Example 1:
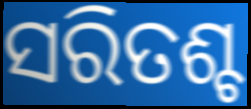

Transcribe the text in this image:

ସରିତଶ୍ଚ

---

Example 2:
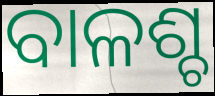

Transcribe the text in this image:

ବାଳଶ୍ଚ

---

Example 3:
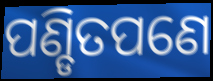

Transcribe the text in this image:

ପଣ୍ଡିତପଣେ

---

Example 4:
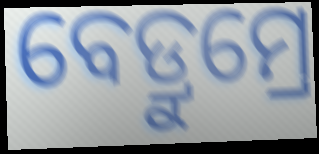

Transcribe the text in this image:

ବେଡ୍ରୁମ୍ରେ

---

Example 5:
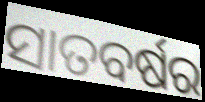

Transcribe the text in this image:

ସାତବର୍ଷର